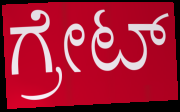
ಗ್ರೇಟ್